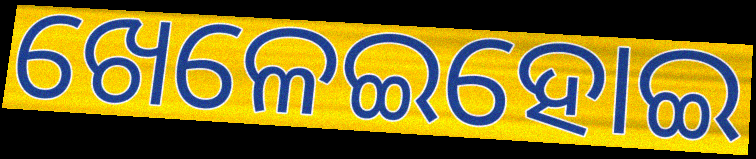
ଖେଳେଇହୋଇ